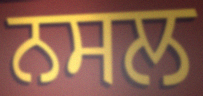
ਨਸਲ